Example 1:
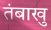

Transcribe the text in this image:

तंबाखु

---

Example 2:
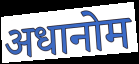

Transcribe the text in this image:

अधानोम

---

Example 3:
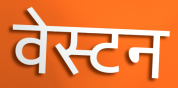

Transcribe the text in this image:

वेस्टन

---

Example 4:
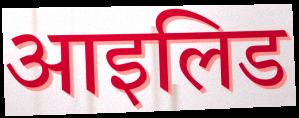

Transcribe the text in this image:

आइलिड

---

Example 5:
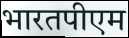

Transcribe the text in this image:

भारतपीएम